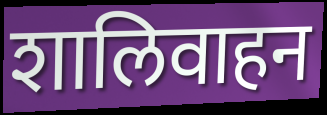
शालिवाहन